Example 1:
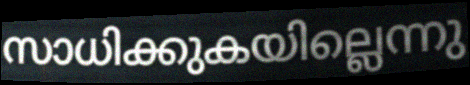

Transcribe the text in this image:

സാധിക്കുകയില്ലെന്നു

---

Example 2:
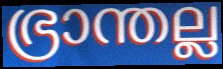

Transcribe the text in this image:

ഭ്രാന്തല്ല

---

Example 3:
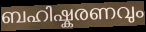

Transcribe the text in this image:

ബഹിഷ്കരണവും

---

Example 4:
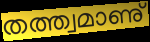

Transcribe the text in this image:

തത്ത്വമാണു്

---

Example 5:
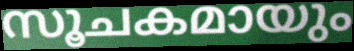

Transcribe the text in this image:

സൂചകമായും